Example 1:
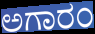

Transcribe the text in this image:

ಅಗಾರಂ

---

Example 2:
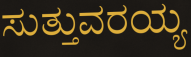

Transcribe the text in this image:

ಸುತ್ತುವರಯ್ಯ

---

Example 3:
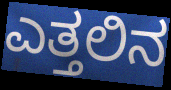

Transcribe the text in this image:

ಎತ್ತಲಿನ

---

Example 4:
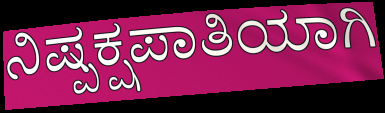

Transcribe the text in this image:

ನಿಷ್ಪಕ್ಷಪಾತಿಯಾಗಿ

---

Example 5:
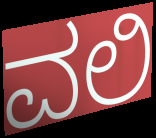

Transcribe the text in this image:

ವಲಿ